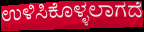
ಉಳಿಸಿಕೊಳ್ಳಲಾಗದೆ